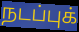
நடப்புக்